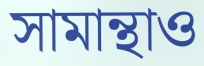
সামান্থাও